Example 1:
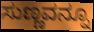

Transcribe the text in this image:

ಸುಣ್ಣವನ್ನೂ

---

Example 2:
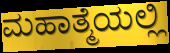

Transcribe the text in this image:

ಮಹಾತ್ಮೆಯಲ್ಲಿ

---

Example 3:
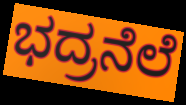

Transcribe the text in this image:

ಭದ್ರನೆಲೆ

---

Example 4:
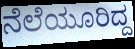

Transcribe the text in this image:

ನೆಲೆಯೂರಿದ್ದ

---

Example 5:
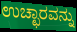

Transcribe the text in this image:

ಉಚ್ಛಾರವನ್ನು